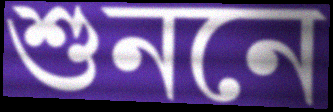
শুননে